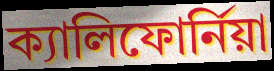
ক্যালিফোর্নিয়া